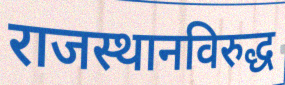
राजस्थानविरुद्ध